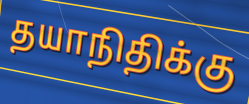
தயாநிதிக்கு